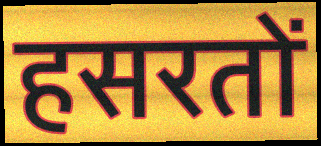
हसरतों